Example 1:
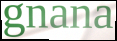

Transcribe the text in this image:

gnana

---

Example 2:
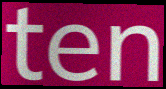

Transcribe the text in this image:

ten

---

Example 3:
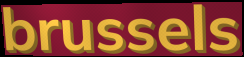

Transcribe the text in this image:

brussels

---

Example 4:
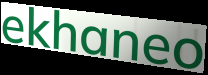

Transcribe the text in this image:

ekhaneo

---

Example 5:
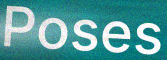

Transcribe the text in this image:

Poses